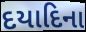
દયાદિના